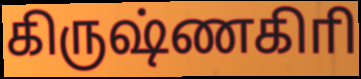
கிருஷ்ணகிரி